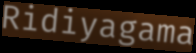
Ridiyagama